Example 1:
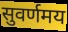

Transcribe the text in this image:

सुवर्णमय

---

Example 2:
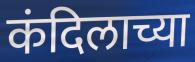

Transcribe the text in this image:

कंदिलाच्या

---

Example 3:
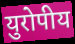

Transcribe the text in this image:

युरोपीय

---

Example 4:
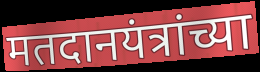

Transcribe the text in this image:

मतदानयंत्रांच्या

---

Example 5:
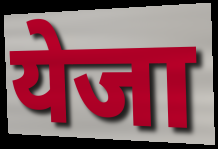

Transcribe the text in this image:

येजा